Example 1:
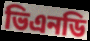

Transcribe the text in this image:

ভিএনডি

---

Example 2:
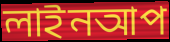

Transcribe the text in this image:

লাইনআপ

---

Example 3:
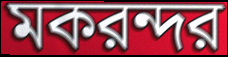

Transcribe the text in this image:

মকরন্দর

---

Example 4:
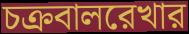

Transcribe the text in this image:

চক্রবালরেখার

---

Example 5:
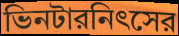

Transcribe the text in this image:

ভিনটারনিৎসের